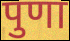
पुणा